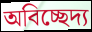
অবিচ্ছেদ্য